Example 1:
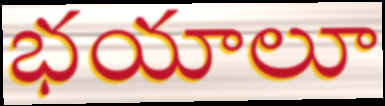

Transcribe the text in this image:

భయాలూ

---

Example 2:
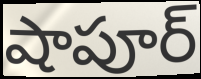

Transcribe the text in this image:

షాపూర్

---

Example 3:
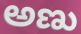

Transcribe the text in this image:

అణు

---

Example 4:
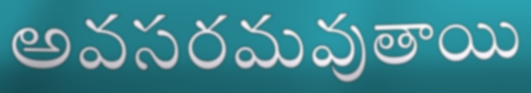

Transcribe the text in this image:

అవసరమవుతాయి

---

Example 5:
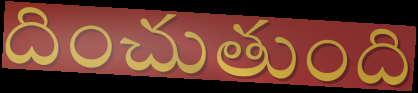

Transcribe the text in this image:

దించుతుంది